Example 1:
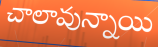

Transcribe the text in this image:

చాలావున్నాయి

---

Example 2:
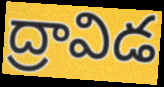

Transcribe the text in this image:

ద్రావిడ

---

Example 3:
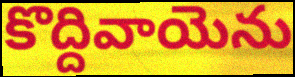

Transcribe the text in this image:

కొద్దివాయెను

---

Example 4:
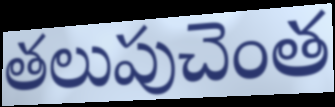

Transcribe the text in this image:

తలుపుచెంత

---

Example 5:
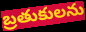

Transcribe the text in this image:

బ్రతుకులను